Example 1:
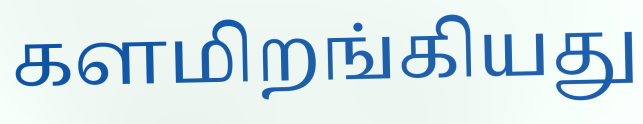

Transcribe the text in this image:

களமிறங்கியது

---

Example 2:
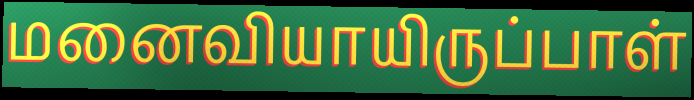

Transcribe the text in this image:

மனைவியாயிருப்பாள்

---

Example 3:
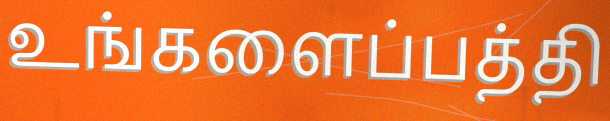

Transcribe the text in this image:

உங்களைப்பத்தி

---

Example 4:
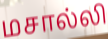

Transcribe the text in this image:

மசால்லி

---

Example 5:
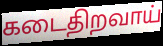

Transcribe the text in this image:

கடைதிறவாய்